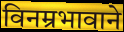
विनम्रभावाने